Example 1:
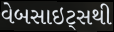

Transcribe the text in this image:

વેબસાઇટ્સથી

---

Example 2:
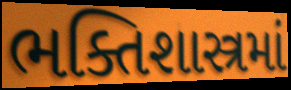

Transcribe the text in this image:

ભક્તિશાસ્ત્રમાં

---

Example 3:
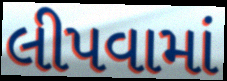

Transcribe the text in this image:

લીપવામાં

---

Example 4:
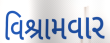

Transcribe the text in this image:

વિશ્રામવાર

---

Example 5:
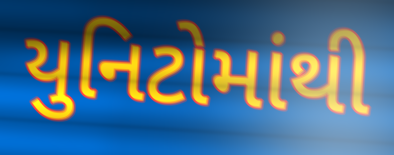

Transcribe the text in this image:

યુનિટોમાંથી